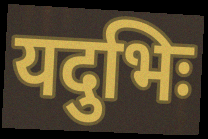
यदुभिः